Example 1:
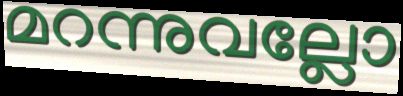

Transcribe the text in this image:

മറന്നുവല്ലോ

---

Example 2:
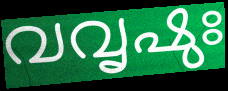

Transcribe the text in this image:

വവൃഷുഃ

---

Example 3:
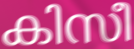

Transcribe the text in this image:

കിസീ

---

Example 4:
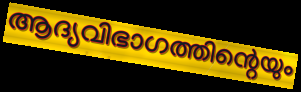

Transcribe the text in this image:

ആദ്യവിഭാഗത്തിന്റെയും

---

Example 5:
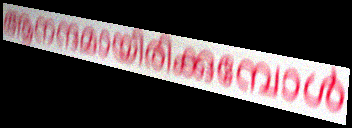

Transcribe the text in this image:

ആനന്ദമായിരിക്കുമ്പോൾ